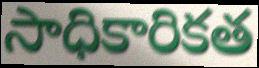
సాధికారికత